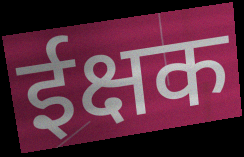
ईक्षक